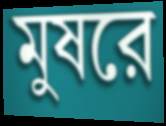
মুষরে